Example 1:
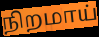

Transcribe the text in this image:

நிறமாய்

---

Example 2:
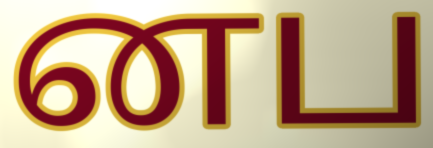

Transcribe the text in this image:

னப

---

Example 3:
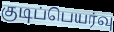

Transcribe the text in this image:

குடிப்பெயர்வு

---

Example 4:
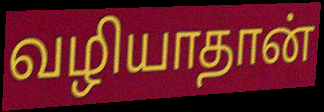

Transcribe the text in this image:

வழியாதான்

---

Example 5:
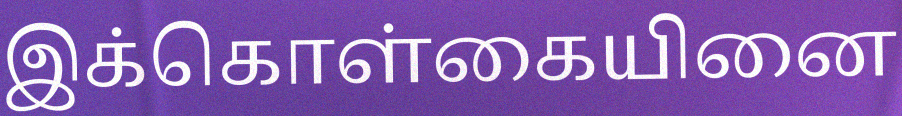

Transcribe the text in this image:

இக்கொள்கையினை